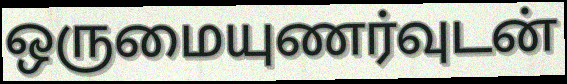
ஒருமையுணர்வுடன்